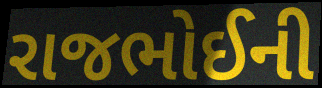
રાજભોઈની